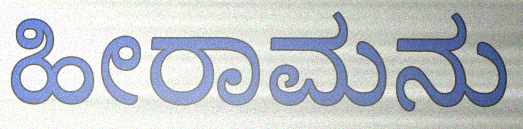
ಹೀರಾಮನು